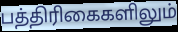
பத்திரிகைகளிலும்